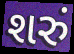
શરું